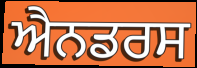
ਐਨਡਰਸ